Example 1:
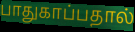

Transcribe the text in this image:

பாதுகாப்பதால்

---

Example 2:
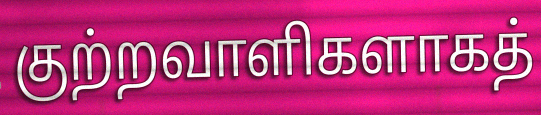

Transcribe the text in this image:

குற்றவாளிகளாகத்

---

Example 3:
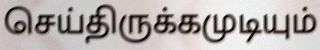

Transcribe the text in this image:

செய்திருக்கமுடியும்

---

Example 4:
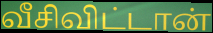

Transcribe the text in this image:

வீசிவிட்டான்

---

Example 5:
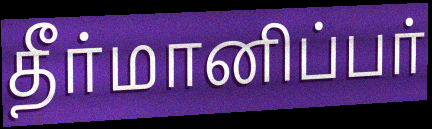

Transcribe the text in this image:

தீர்மானிப்பர்